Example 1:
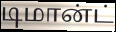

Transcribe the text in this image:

டிமான்ட்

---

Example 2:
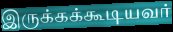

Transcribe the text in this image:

இருக்கக்கூடியவர்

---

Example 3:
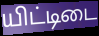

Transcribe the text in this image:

யிட்டிடை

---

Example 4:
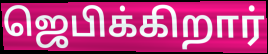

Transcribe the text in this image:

ஜெபிக்கிறார்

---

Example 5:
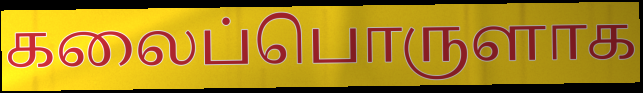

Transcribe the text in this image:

கலைப்பொருளாக